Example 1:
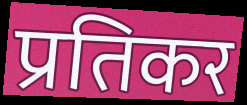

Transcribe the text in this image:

प्रतिकर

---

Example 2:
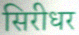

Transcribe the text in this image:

सिरीधर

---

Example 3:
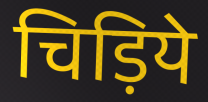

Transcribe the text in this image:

चिड़िये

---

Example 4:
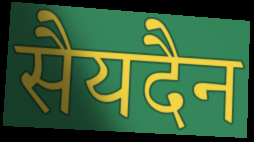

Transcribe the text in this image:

सैयदैन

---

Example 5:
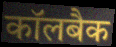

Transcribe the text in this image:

कॉलबैक